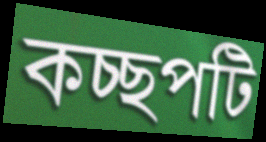
কচ্ছপটি